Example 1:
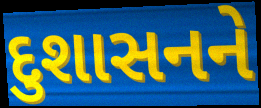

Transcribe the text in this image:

દુશાસનને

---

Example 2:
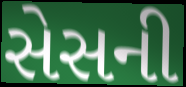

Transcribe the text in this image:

સેસની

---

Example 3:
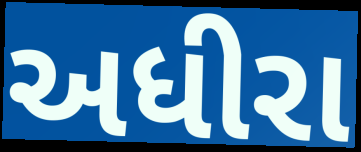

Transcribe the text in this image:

અધીરા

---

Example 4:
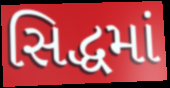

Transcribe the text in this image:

સિદ્ધમાં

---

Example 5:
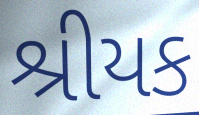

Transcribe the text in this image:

શ્રીયક